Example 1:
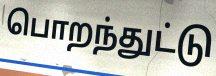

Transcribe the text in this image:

பொறந்துட்டு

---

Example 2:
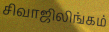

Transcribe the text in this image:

சிவாஜிலிங்கம்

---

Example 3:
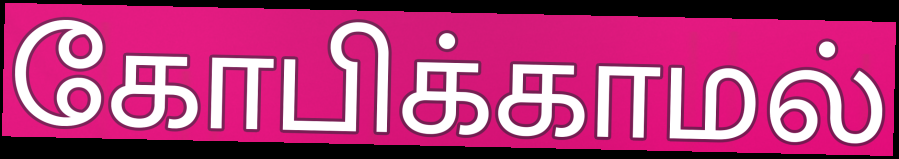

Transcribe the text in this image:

கோபிக்காமல்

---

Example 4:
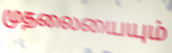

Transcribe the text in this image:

முதலையையும்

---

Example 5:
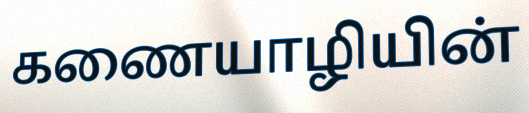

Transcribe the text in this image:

கணையாழியின்